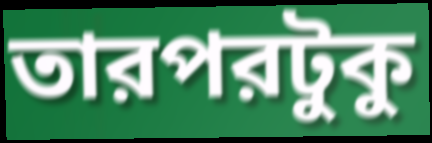
তারপরটুকু